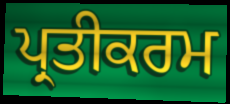
ਪ੍ਰਤੀਕਰਮ